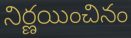
నిర్ణయించినం